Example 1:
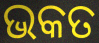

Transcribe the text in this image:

ଭକତ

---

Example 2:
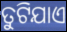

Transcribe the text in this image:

ତୁଟିଯାଏ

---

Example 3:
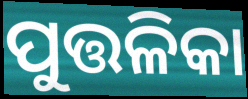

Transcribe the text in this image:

ପୁତ୍ତଳିକା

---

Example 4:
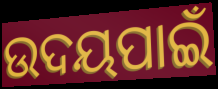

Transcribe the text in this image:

ଉଦୟପାଇଁ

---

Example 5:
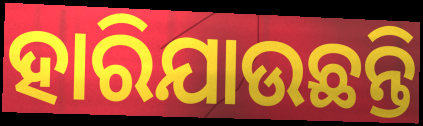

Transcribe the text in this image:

ହାରିଯାଉଛନ୍ତି